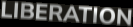
LIBERATION